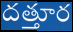
దత్తూర